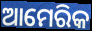
ଆମେରିକ